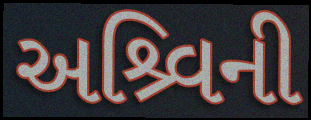
અશ્ર્વિની